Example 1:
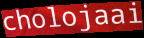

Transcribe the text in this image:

cholojaai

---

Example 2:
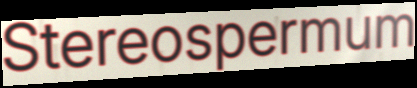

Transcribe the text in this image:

Stereospermum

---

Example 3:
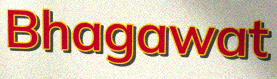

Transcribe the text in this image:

Bhagawat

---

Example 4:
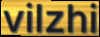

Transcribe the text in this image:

vilzhi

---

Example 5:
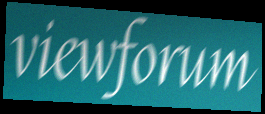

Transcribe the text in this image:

viewforum